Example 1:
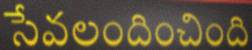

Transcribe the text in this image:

సేవలందించింది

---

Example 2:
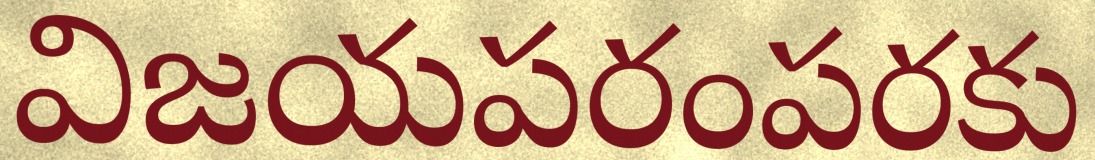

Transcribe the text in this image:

విజయపరంపరకు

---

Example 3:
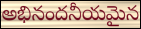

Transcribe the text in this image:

అభినందనీయమైన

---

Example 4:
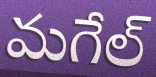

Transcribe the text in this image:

మగేల్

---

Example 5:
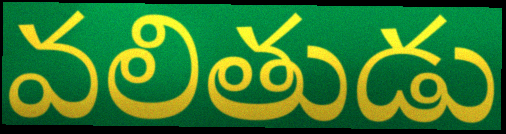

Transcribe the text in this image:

వలితుడు